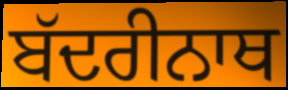
ਬੱਦਰੀਨਾਥ